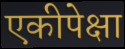
एकीपेक्षा